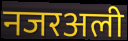
नजरअली